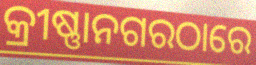
କ୍ରୀଷ୍ଣାନଗରଠାରେ